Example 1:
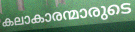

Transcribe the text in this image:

കലാകാരന്മാരുടെ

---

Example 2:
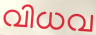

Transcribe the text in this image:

വിധവ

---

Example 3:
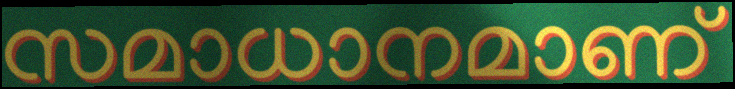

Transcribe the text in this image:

സമാധാനമാണ്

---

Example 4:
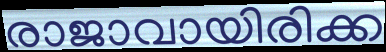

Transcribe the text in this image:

രാജാവായിരിക്ക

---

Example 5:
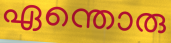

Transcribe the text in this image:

ഏന്തൊരു